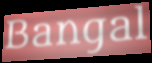
Bangal